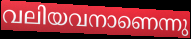
വലിയവനാണെന്നു